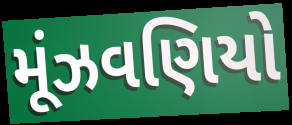
મૂંઝવણિયો